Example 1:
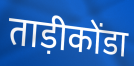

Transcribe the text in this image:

ताड़ीकोंडा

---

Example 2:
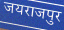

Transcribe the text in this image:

जयराजपुर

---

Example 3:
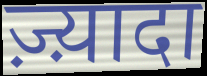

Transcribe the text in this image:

ज़्य़ादा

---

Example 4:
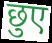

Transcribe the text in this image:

छुए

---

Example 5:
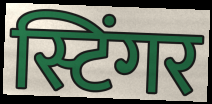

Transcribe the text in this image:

स्टिंगर